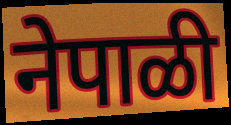
नेपाळी